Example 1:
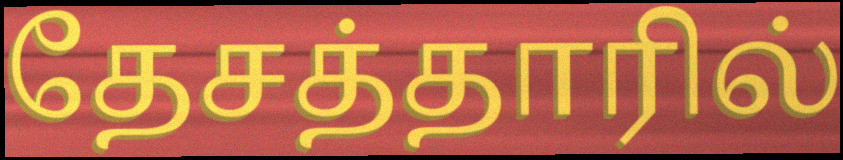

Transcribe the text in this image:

தேசத்தாரில்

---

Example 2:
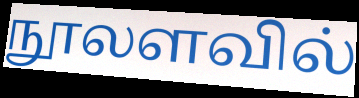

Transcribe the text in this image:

நூலளவில்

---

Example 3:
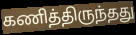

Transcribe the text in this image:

கணித்திருந்தது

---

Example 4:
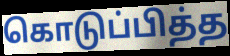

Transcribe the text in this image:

கொடுப்பித்த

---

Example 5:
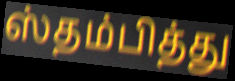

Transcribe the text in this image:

ஸ்தம்பித்து